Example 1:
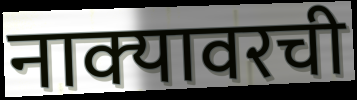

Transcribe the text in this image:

नाक्यावरची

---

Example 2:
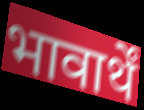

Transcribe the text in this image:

भावार्थें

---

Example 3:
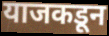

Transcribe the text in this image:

याजकडून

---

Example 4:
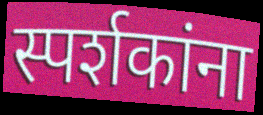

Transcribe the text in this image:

स्पर्शकांना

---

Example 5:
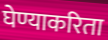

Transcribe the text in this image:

घेण्याकरिता